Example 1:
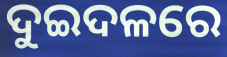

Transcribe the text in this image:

ଦୁଇଦଳରେ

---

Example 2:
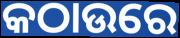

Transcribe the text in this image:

କଠାଉରେ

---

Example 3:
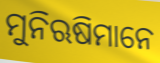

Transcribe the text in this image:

ମୁନିଋଷିମାନେ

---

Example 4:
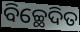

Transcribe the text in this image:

ବିଚ୍ଛେଦିତ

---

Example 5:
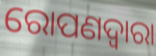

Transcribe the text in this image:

ରୋପଣଦ୍ୱାରା